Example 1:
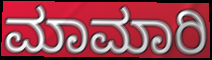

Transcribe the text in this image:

ಮಾಮಾರಿ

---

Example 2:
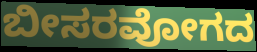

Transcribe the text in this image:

ಬೀಸರವೋಗದ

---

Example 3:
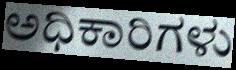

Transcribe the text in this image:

ಅಧಿಕಾರಿಗಳು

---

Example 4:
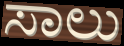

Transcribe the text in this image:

ಸಾಲು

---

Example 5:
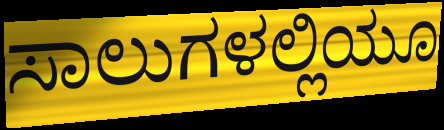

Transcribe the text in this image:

ಸಾಲುಗಳಲ್ಲಿಯೂ